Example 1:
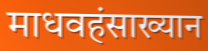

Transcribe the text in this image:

माधवहंसाख्यान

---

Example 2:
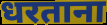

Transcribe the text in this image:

धरताना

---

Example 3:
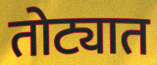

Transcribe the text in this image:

तोट्यात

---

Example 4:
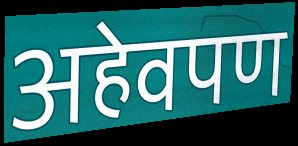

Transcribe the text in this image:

अहेवपण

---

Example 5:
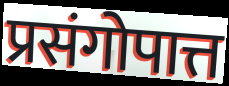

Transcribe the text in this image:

प्रसंगोपात्त